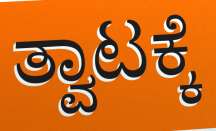
ತ್ವಾಟಕ್ಕೆ